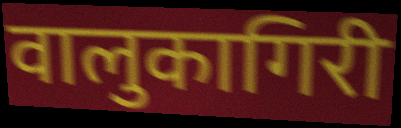
वालुकागिरी